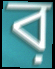
ব়